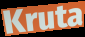
Kruta